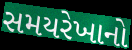
સમયરેખાનો